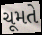
ચૂમતે